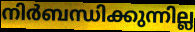
നിർബന്ധിക്കുന്നില്ല